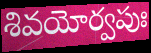
శివయోర్వపుః